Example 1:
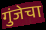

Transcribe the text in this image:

गुंजेचा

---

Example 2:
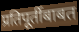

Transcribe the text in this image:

प्रतिपूर्तीबाबत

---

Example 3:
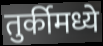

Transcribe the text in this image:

तुर्कीमध्ये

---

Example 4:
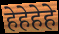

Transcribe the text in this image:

हेहेहेहे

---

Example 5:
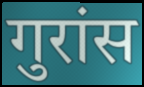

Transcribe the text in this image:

गुरांस